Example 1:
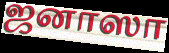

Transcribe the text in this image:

ஜனாஸா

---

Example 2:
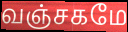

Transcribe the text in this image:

வஞ்சகமே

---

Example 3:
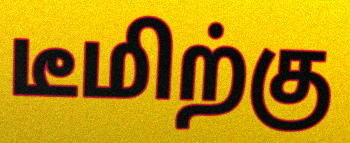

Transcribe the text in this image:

டீமிற்கு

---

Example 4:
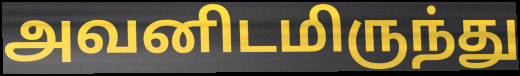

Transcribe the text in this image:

அவனிடமிருந்து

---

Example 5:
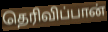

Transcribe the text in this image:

தெரிவிப்பான்